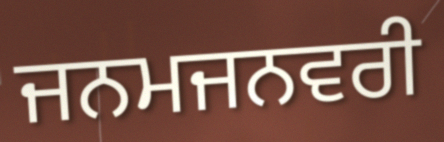
ਜਨਮਜਨਵਰੀ